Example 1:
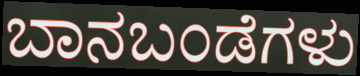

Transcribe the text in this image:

ಬಾನಬಂಡೆಗಳು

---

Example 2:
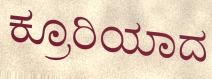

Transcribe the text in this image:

ಕ್ರೂರಿಯಾದ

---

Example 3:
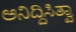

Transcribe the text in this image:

ಅನಿದ್ದಿಸಿತ್ವಾ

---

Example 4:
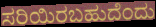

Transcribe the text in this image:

ಸರಿಯಿರಬಹುದೆಂದು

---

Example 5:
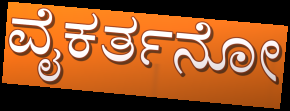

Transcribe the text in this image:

ವೈಕರ್ತನೋ